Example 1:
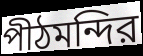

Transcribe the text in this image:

পীঠমন্দির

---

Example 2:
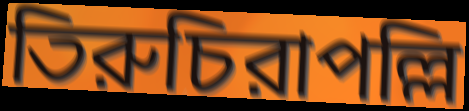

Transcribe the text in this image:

তিরুচিরাপল্লি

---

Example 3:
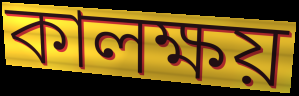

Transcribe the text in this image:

কালক্ষয়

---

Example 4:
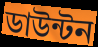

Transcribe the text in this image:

ডাউন্টন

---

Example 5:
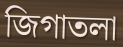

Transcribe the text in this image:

জিগাতলা